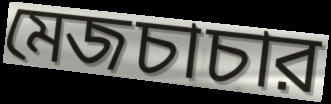
মেজচাচার